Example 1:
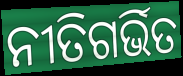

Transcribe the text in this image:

ନୀତିଗର୍ଭିତ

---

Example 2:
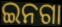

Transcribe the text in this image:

ଇନଗା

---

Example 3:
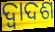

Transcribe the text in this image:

ଦ୍ୱାଦଶ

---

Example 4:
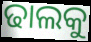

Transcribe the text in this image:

ଢାଲକୁ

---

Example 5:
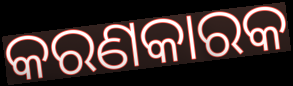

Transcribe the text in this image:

କରଣକାରକ